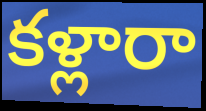
కళ్లారా